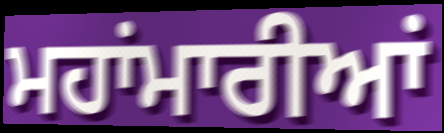
ਮਹਾਂਮਾਰੀਆਂ